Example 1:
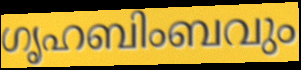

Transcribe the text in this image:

ഗൃഹബിംബവും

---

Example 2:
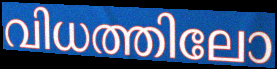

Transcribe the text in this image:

വിധത്തിലോ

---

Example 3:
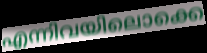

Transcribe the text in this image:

എന്നിവയിലൊക്കെ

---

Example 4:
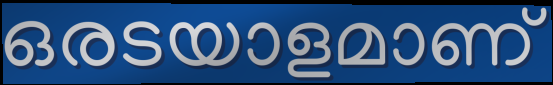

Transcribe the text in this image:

ഒരടയാളമാണ്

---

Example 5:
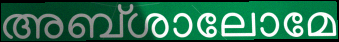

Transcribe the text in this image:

അബ്ശാലോമേ